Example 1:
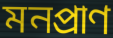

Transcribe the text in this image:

মনপ্রাণ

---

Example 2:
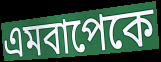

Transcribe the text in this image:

এমবাপেকে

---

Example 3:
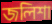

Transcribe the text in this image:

জলিশা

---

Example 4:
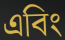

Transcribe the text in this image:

এবিং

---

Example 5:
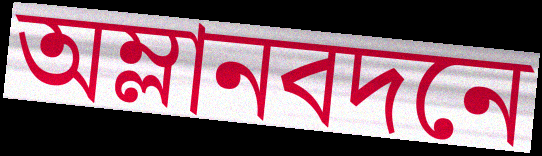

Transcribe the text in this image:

অম্লানবদনে